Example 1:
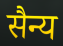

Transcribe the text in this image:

सैन्य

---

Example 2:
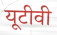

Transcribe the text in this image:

यूटीवी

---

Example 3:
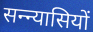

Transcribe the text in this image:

सन्न्यासियों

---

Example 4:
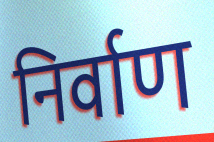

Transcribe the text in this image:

निर्वाण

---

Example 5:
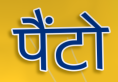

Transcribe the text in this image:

पैंटो